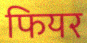
फियर